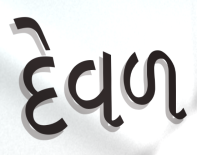
દેવળ